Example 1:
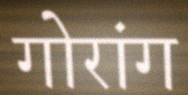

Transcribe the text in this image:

गोरांग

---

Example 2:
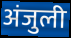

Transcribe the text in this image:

अंजुली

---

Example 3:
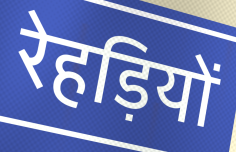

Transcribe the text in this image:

रेहड़ियों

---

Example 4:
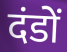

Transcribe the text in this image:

दंडों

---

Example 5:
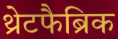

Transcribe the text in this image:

थ्रेटफैब्रिक